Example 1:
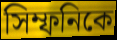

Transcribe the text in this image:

সিম্ফনিকে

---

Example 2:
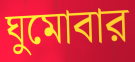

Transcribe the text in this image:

ঘুমোবার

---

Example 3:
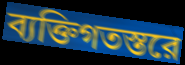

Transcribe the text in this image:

ব্যক্তিগতস্তরে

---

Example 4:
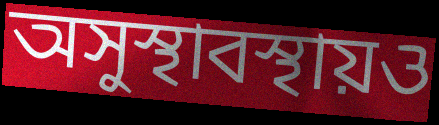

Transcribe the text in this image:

অসুস্থাবস্থায়ও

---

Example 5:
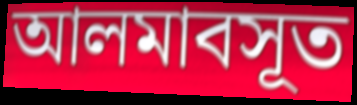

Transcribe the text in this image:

আলমাবসূত